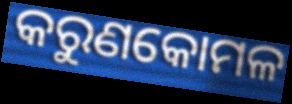
କରୁଣକୋମଳ